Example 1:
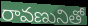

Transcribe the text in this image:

రావణునితో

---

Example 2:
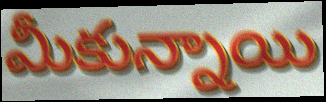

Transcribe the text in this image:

మీకున్నాయి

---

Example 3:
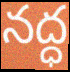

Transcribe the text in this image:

నద్ధ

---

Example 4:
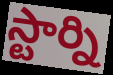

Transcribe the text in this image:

స్టార్ని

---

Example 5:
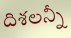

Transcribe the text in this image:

దిశలన్నీ